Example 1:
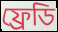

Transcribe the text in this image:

ফ্রেডি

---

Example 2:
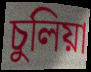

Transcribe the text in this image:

চুলিয়া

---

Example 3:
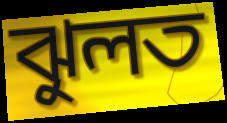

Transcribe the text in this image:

ঝুলত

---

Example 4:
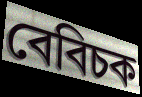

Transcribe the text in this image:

বেবিচক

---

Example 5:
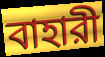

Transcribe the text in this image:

বাহারী